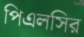
পিএলসির